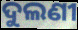
ଦୁଲଣୀ